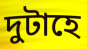
দুটাহে